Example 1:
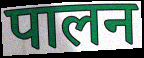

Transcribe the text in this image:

पालन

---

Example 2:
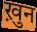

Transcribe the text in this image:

ख़ुन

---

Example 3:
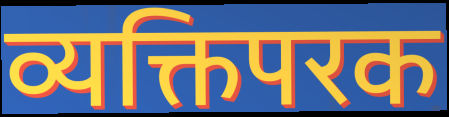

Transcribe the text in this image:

व्यक्तिपरक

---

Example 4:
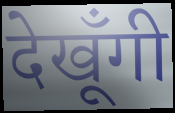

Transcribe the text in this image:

देखूँगी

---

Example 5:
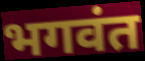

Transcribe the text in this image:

भगवंत